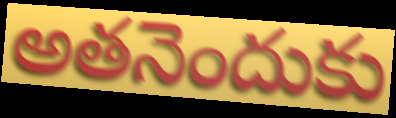
అతనెందుకు